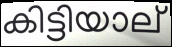
കിട്ടിയാല്